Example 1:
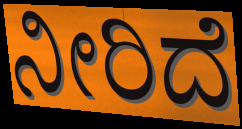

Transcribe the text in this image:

ನೀರಿದೆ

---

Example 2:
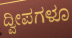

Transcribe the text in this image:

ದ್ವೀಪಗಳೂ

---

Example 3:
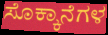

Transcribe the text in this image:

ಸೊಕ್ಕಾನೆಗಳ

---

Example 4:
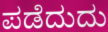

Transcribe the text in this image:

ಪಡೆದುದು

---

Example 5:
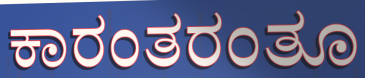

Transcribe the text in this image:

ಕಾರಂತರಂತೂ